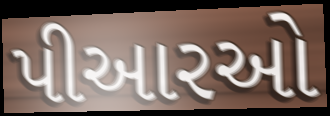
પીઆરઓ